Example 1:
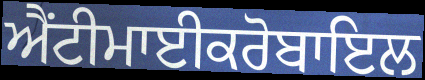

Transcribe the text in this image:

ਐਂਟੀਮਾਈਕਰੋਬਾਇਲ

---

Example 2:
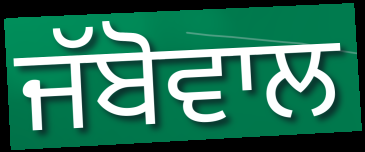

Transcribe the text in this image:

ਜੱਬੋਵਾਲ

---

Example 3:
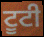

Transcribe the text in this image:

ਟੂਟੀ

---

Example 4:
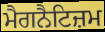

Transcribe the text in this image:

ਮੈਗਨੈਟਿਜ਼ਮ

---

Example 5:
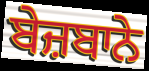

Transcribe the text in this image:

ਬੇਜ਼ਬਾਨੇ